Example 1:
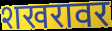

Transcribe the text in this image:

शखरावर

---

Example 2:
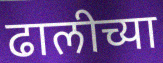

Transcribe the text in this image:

ढालीच्या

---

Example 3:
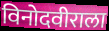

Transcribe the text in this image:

विनोदवीराला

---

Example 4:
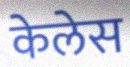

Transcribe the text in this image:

केलेस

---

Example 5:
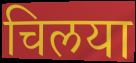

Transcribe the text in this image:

चिलया